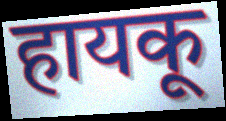
हायकू